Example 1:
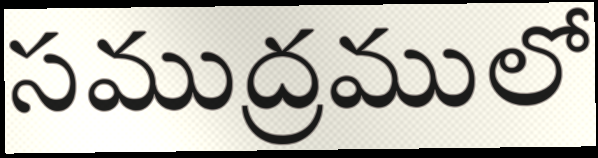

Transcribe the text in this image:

సముద్రములో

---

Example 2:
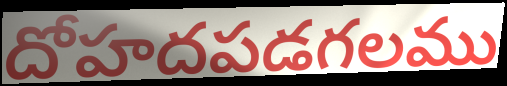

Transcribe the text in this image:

దోహదపడగలము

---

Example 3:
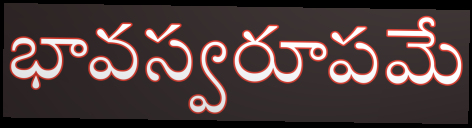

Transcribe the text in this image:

భావస్వరూపమే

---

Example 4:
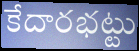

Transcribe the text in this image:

కేదారభట్టు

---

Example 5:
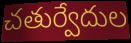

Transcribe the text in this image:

చతుర్వేదుల